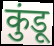
कुंडू